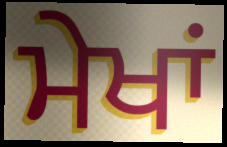
ਮੇਖਾਂ